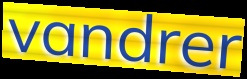
vandrer